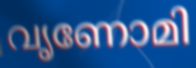
വൃണോമി